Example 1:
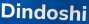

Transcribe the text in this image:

Dindoshi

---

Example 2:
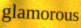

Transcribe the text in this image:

glamorous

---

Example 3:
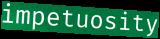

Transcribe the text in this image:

impetuosity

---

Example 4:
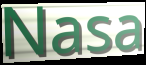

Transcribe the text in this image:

Nasa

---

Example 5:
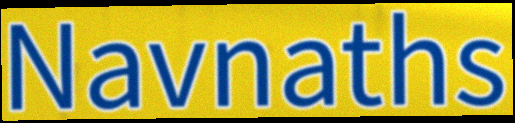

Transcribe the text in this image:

Navnaths